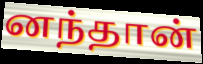
னந்தான்